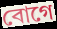
বোগে